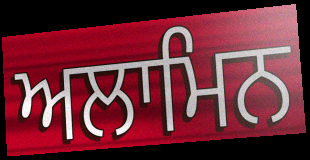
ਅਲਾਮਿਨ